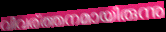
വിവര്ത്തനമായിരുന്നു